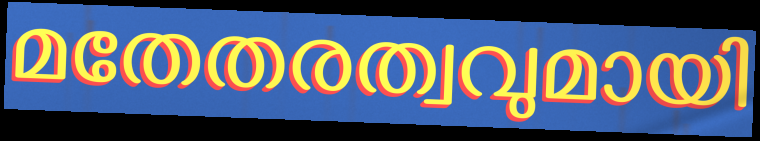
മതേതരത്വവുമായി